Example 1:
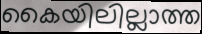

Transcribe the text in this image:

കൈയിലില്ലാത്ത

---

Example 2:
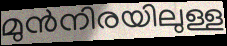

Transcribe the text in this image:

മുൻനിരയിലുള്ള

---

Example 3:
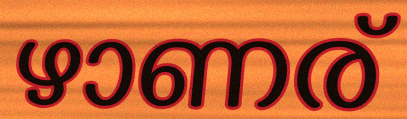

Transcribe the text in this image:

ഴാണര്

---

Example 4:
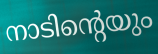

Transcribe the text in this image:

നാടിന്റെയും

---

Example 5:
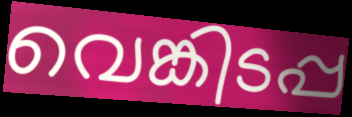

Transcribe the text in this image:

വെങ്കിടപ്പ